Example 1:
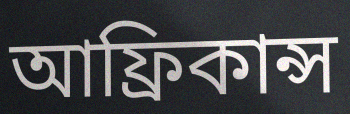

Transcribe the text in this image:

আফ্ৰিকান্স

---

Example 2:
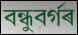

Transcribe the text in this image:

বন্ধুবৰ্গৰ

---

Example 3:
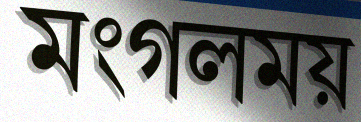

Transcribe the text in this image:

মংগলময়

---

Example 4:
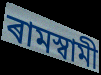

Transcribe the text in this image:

ৰামস্বামী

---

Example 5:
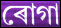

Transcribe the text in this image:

ৰোগা